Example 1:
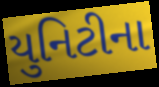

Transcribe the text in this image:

યુનિટીના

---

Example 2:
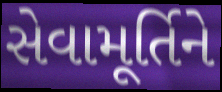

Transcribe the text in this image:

સેવામૂર્તિને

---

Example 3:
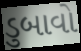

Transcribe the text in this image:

ડુબાવો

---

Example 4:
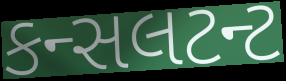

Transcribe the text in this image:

કન્સલટન્ટ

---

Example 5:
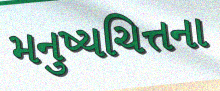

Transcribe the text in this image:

મનુષ્યચિત્તના